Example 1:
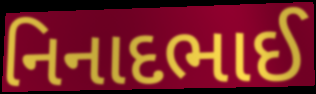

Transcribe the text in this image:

નિનાદભાઈ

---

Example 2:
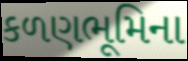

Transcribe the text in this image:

કળણભૂમિના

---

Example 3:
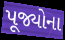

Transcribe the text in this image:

પૂજ્યોના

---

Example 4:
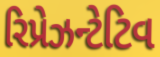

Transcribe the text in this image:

રિપ્રેઝન્ટેટિવ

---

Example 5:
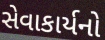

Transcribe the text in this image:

સેવાકાર્યનો